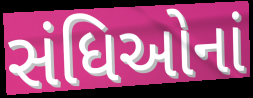
સંધિઓનાં